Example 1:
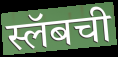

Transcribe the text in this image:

स्लॅबची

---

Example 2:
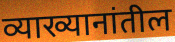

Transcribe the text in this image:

व्याख्यानांतील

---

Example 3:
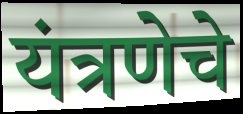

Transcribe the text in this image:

यंत्रणेचे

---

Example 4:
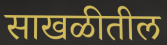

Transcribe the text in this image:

साखळीतील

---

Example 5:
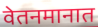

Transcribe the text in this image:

वेतनमानात